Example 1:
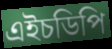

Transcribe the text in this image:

এইচডিপি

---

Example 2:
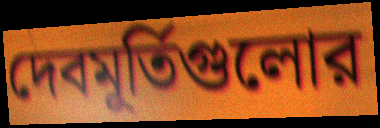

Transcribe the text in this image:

দেবমূর্তিগুলোর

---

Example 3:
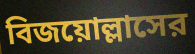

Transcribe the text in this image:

বিজয়োল্লাসের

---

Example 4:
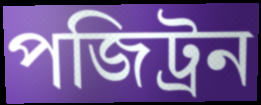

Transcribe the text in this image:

পজিট্রন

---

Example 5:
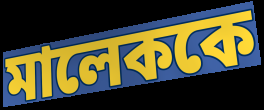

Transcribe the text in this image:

মালেককে